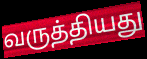
வருத்தியது